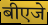
बीएजे